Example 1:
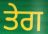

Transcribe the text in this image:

ਤੇਗ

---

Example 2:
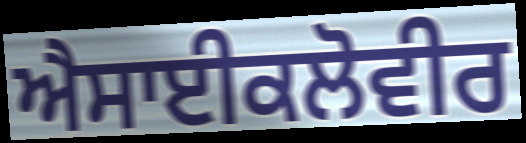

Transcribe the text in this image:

ਐਸਾਈਕਲੋਵੀਰ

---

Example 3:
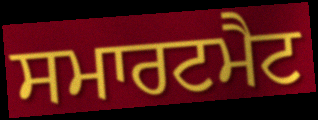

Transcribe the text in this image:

ਸਮਾਰਟਮੈਟ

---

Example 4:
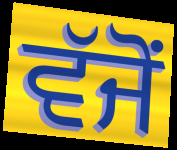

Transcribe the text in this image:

ਵੱਜੋਂ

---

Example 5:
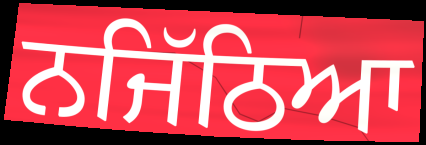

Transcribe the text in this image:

ਨਜਿੱਠਿਆ